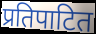
प्रतिपाटित